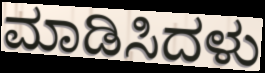
ಮಾಡಿಸಿದಳು